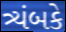
ત્ર્યંબકે